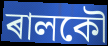
ৰালকৌ